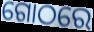
ଗୋଠରେ